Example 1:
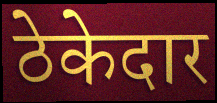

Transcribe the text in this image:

ठेकेदार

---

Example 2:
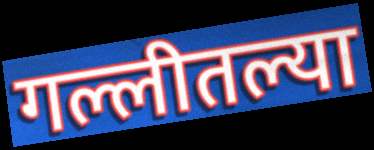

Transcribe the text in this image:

गल्लीतल्या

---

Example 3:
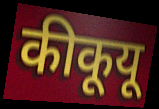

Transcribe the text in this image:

कीकूयू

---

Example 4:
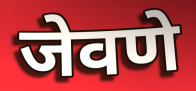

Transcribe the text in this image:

जेवणे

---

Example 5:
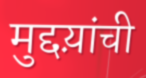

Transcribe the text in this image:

मुद्दय़ांची